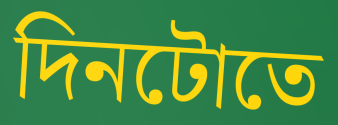
দিনটোতে